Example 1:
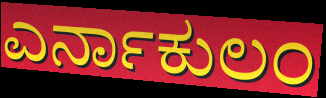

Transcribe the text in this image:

ಎರ್ನಾಕುಲಂ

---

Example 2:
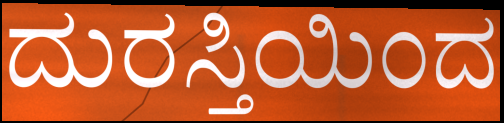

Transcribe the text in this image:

ದುರಸ್ತಿಯಿಂದ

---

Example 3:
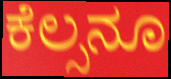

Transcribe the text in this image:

ಕೆಲ್ಸನೂ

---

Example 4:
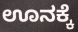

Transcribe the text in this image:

ಊನಕ್ಕೆ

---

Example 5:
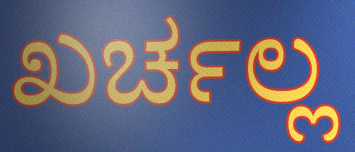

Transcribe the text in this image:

ಖರ್ಚಲ್ಲ